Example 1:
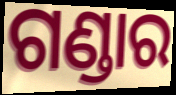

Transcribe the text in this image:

ଗଣ୍ଡାର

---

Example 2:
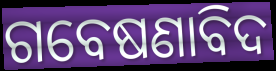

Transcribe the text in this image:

ଗବେଷଣାବିଦ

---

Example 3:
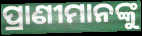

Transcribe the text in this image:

ପ୍ରାଣୀମାନଙ୍କୁ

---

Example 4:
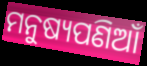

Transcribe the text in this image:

ମନୁଷ୍ୟପଣିଆଁ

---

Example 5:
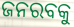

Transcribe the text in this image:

ଜନରବକୁ